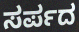
ಸರ್ಪದ